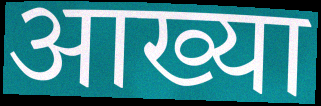
आख्या